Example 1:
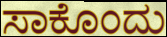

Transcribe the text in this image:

ಸಾಕೊಂದು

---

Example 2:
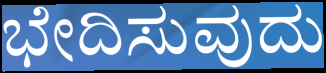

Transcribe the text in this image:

ಭೇದಿಸುವುದು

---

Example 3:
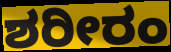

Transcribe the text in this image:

ಶರೀರಂ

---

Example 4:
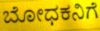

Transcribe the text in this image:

ಬೋಧಕನಿಗೆ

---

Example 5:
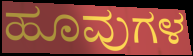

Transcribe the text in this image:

ಹೂವುಗಳ